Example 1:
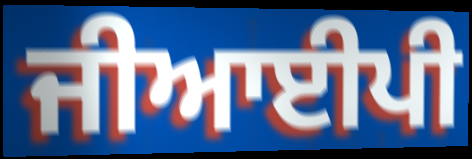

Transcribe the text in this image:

ਜੀਆਈਪੀ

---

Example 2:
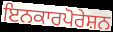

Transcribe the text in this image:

ਇਨਕਾਰਪੋਰੇਸ਼ਨ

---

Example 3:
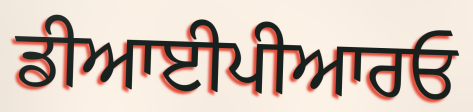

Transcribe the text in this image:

ਡੀਆਈਪੀਆਰਓ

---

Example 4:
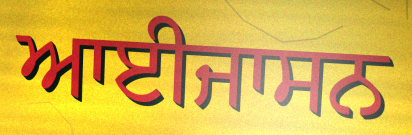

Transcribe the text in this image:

ਆਈਜਾਸਨ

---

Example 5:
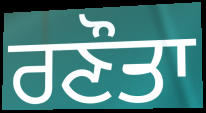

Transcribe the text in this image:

ਰਣੌਤਾ